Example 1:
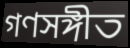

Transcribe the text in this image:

গণসঙ্গীত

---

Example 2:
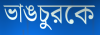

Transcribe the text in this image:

ভাঙচুরকে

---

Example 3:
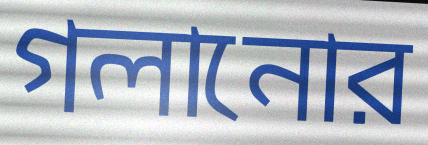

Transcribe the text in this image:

গলানোর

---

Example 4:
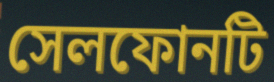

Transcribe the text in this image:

সেলফোনটি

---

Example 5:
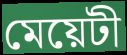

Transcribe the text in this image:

মেয়েটী